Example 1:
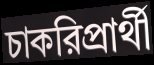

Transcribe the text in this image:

চাকরিপ্রার্থী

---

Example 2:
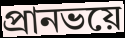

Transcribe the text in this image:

প্রানভয়ে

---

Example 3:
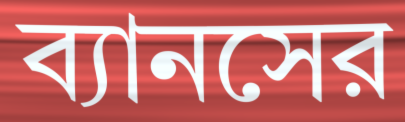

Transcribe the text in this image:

ব্যানসের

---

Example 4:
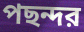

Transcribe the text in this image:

পছন্দর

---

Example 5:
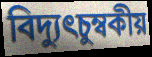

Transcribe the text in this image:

বিদ্যুৎচুম্বকীয়